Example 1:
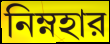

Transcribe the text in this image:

নিম্নহার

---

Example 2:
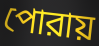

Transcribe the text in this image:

পোরায়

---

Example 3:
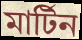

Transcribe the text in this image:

মার্টিন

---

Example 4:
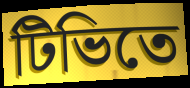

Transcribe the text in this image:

টিভিতে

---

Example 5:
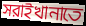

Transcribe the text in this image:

সরাইখানাতে